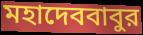
মহাদেববাবুর